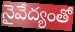
నైవేద్యంతో